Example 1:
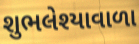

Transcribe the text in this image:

શુભલેશ્યાવાળા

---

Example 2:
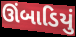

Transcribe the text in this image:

ઊંબાડિયું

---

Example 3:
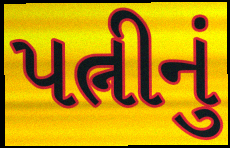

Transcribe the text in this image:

પત્નીનું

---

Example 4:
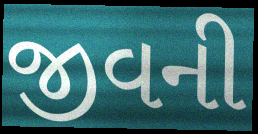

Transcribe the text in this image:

જીવની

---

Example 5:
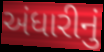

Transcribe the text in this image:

અંધારીનું